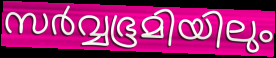
സർവ്വഭൂമിയിലും